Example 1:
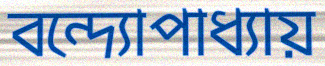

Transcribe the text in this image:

বন্দ্যোপাধ্যায়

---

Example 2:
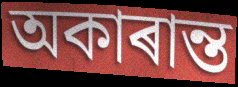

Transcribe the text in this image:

অকাৰান্ত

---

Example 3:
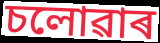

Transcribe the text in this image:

চলোৱাৰ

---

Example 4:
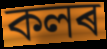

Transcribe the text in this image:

কলৰ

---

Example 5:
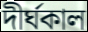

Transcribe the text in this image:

দীৰ্ঘকাল